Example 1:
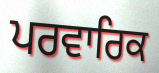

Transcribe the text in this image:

ਪਰਵਾਰਿਕ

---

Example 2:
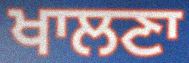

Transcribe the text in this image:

ਖਾਲਣਾ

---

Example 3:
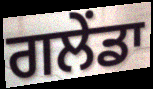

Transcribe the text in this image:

ਗਲੇਂਡਾ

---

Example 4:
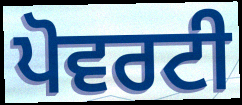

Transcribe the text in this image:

ਪੋਵਰਟੀ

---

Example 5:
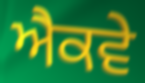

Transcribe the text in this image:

ਐਕਵੇ